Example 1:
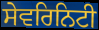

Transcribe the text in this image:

ਸੇਵਰਿਨਿਟੀ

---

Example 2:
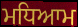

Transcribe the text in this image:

ਮਧਿਆਮ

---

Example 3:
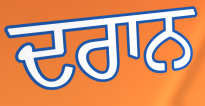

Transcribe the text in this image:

ਦਰਾਨ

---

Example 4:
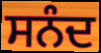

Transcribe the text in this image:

ਸਨੰਦ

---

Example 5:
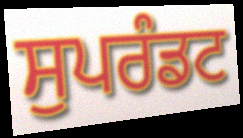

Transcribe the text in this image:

ਸੁਪਰੰਡਟ